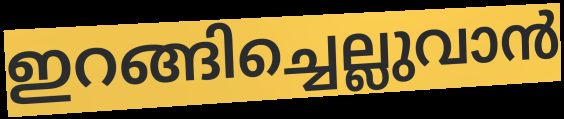
ഇറങ്ങിച്ചെല്ലുവാൻ